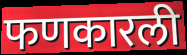
फणकारली